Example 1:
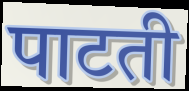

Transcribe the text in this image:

पाटती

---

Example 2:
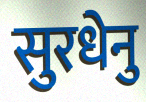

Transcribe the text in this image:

सुरधेनु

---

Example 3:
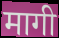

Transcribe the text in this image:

मागी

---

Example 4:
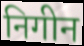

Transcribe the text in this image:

निगीन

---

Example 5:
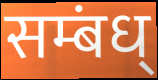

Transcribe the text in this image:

सम्बंध्